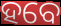
ହବେ